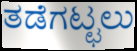
ತಡೆಗಟ್ಟಲು